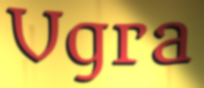
Ugra